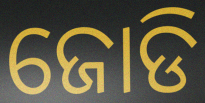
ଜୋଡି